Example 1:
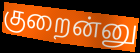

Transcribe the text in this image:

குறைன்னு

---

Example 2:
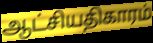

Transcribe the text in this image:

ஆட்சியதிகாரம்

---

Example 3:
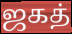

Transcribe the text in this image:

ஜகத்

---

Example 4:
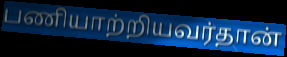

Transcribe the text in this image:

பணியாற்றியவர்தான்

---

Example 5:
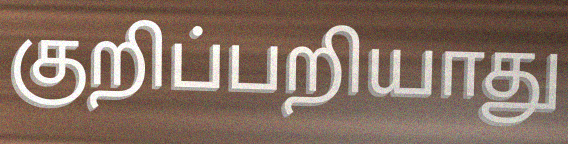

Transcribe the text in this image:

குறிப்பறியாது